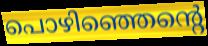
പൊഴിഞ്ഞെന്റെ